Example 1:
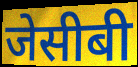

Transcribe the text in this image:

जेसीबी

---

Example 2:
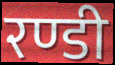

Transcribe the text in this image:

रण्डी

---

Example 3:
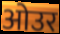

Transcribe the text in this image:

ओउर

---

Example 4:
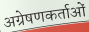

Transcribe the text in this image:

अग्रेषणकर्ताओं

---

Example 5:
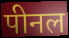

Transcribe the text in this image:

पीनल